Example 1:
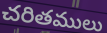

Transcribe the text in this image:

చరితములు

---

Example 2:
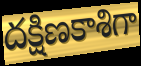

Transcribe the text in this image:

దక్షిణకాశిగా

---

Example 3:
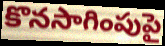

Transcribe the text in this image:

కొనసాగింపుపై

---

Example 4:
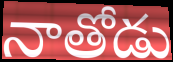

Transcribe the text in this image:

నాతోడు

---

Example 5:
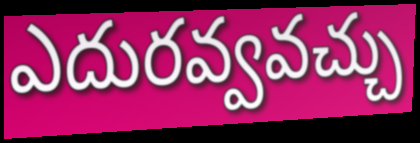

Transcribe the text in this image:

ఎదురవ్వవచ్చు